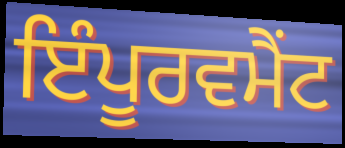
ਇੰਪੂਰਵਮੈਂਟ